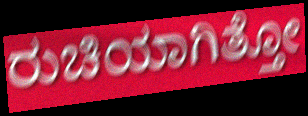
ರುಚಿಯಾಗಿತ್ತೋ